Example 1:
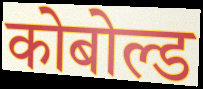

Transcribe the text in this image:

कोबोल्ड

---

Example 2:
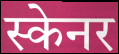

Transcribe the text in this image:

स्केनर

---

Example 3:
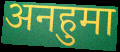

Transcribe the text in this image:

अनहुमा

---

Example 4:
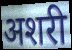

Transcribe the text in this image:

अशरी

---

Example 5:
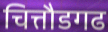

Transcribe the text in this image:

चित्तौडगढ